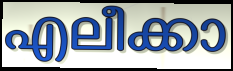
എലീക്കാ